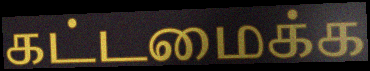
கட்டமைக்க